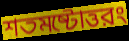
শতমষ্টোত্তরং